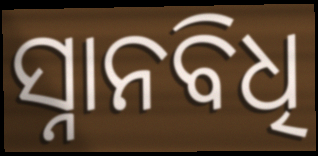
ସ୍ନାନବିଧି